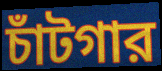
চাঁটগার